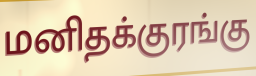
மனிதக்குரங்கு